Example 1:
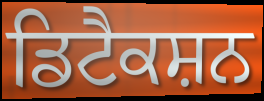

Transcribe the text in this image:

ਡਿਟੈਕਸ਼ਨ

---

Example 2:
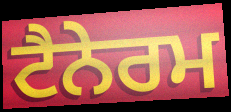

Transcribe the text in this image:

ਟੈਨੇਰਮ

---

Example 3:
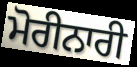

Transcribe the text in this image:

ਮੋਰੀਨਾਰੀ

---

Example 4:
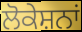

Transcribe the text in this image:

ਲੋਕੇਸ਼ਨਾਂ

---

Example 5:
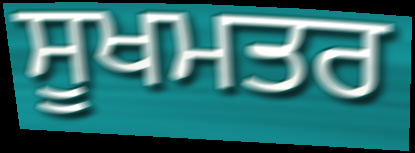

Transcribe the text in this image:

ਸੂਖਮਤਰ